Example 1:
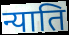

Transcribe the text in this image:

न्याति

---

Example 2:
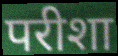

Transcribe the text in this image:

परीशा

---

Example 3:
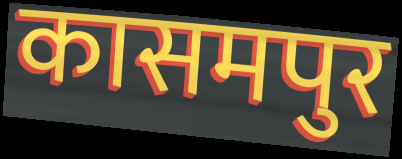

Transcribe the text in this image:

कासमपुर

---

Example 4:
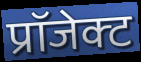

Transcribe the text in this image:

प्रॉजेक्‍ट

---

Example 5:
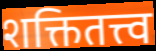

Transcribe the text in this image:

शक्तितत्त्व